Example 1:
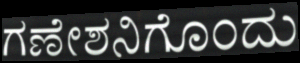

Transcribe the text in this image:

ಗಣೇಶನಿಗೊಂದು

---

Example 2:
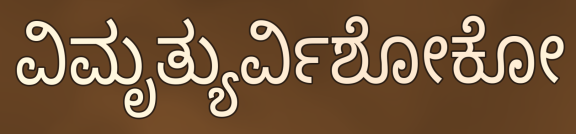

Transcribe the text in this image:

ವಿಮೃತ್ಯುರ್ವಿಶೋಕೋ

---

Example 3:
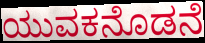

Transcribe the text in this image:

ಯುವಕನೊಡನೆ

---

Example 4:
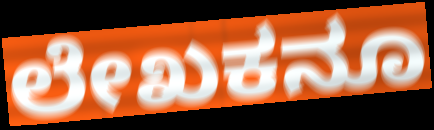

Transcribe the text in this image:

ಲೇಖಕನೂ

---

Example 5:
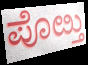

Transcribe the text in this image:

ಪೊೞ್ತು